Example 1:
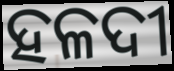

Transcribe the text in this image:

ହଳଦୀ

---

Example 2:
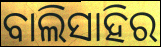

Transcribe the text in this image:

ବାଲିସାହିର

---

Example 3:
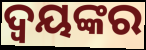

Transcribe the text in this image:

ଦ୍ବୟଙ୍କର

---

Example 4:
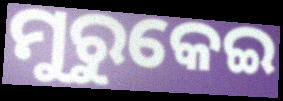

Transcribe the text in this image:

ମୁରୁକେଇ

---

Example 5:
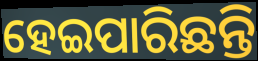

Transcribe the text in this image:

ହେଇପାରିଛନ୍ତି